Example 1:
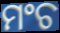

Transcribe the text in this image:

ମଂଚ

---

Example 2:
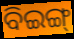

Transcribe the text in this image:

ବିଇଙ୍ଗ୍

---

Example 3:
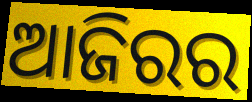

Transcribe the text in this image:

ଆଜିରର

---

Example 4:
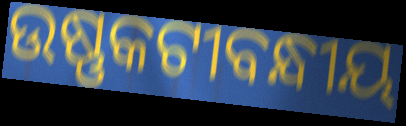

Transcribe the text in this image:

ଉଷ୍ଣକଟୀବନ୍ଧୀୟ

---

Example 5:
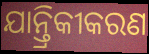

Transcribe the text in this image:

ଯାନ୍ତ୍ରିକୀକରଣ